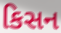
કિસન